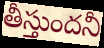
తీస్తుందనీ